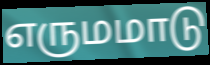
எருமமாடு